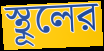
স্থূলের